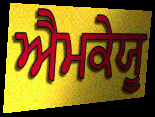
ਐਮਕੇਯੂ